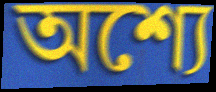
অশ্যে